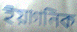
ইয়াগনিক